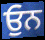
ਓੁਨ